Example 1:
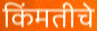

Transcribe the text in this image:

किंमतीचे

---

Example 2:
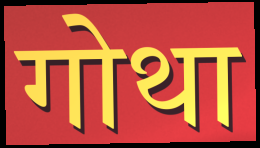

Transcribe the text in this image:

गोथा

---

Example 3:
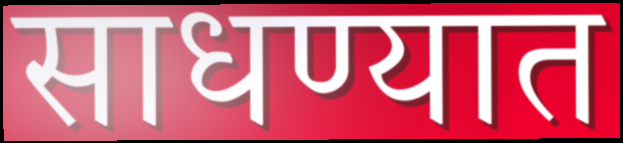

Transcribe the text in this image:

साधण्यात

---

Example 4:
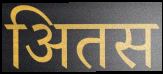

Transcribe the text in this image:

अितस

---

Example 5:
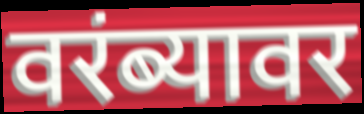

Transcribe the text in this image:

वरंब्यावर